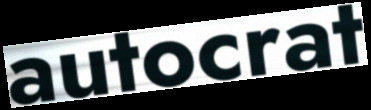
autocrat